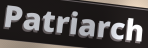
Patriarch